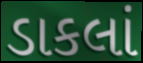
ડાકલાં